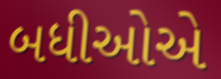
બધીઓએ